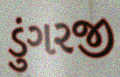
ડુંગરજી